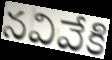
నవివేకి